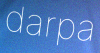
darpa